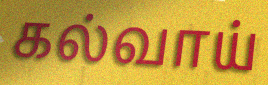
கல்வாய்